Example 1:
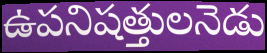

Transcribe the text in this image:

ఉపనిషత్తులనెడు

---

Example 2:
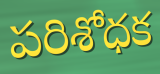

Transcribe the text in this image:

పరిశోధక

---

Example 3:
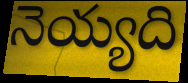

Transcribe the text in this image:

నెయ్యది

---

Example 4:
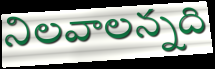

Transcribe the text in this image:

నిలవాలన్నది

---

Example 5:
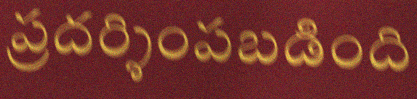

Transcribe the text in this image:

ప్రదర్శింపబడింది